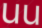
uu